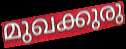
മുഖക്കുരു